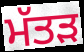
ਮੱਤੜ